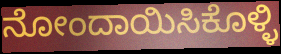
ನೋಂದಾಯಿಸಿಕೊಳ್ಳಿ